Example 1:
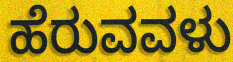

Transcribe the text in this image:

ಹೆರುವವಳು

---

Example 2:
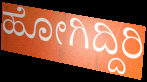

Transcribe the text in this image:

ಹೋಗಿದ್ದಿರಿ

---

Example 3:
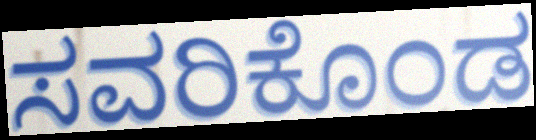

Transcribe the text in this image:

ಸವರಿಕೊಂಡ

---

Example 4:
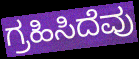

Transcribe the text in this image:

ಗ್ರಹಿಸಿದೆವು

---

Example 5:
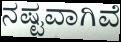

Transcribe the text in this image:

ನಷ್ಟವಾಗಿವೆ